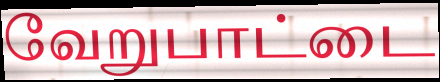
வேறுபாட்டை